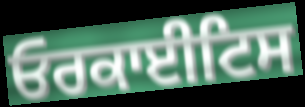
ਓਰਕਾਈਟਿਸ